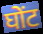
घोंट